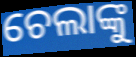
ଚେଲାଙ୍କୁ